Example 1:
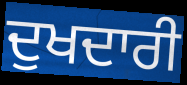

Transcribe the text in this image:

ਦੁਖਦਾਰੀ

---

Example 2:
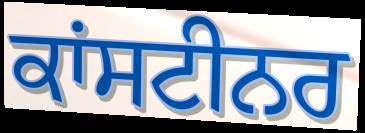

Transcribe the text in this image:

ਕਾਂਸਟੀਨਰ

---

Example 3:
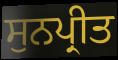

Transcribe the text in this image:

ਸੁਨਪ੍ਰੀਤ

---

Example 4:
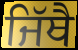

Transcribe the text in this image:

ਜਿੱਥੈ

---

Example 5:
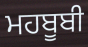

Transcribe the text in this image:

ਮਹਬੂਬੀ